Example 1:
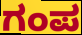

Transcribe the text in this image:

ಗಂಪ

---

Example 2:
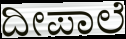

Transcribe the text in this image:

ದೀಪಾಲೆ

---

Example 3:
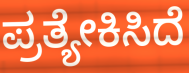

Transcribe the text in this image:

ಪ್ರತ್ಯೇಕಿಸಿದೆ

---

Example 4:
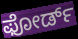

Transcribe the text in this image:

ಫೋರ್ಡ್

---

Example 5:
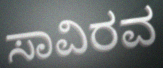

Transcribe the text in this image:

ಸಾವಿರವ